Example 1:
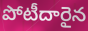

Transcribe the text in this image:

పోటీదారైన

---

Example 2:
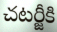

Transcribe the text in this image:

చటర్జీకి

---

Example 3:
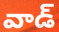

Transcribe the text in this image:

వాడ్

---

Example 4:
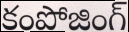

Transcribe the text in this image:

కంపోజింగ్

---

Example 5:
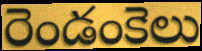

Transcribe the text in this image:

రెండంకెలు